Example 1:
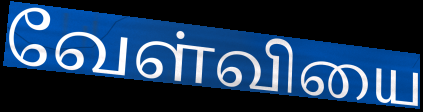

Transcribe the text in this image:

வேள்வியை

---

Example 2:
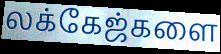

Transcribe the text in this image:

லக்கேஜ்களை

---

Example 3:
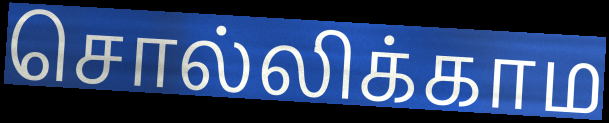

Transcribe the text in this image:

சொல்லிக்காம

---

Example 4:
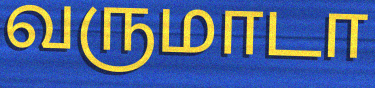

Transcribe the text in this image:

வருமாடா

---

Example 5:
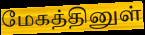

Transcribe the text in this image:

மேகத்தினுள்